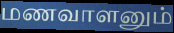
மணவாளனும்